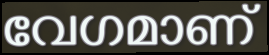
വേഗമാണ്